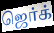
ஜெர்க்